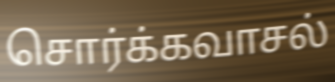
சொர்க்கவாசல்